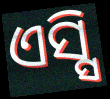
ଏସ୍ସି